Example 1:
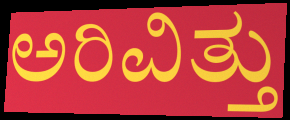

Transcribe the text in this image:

ಅರಿವಿತ್ತು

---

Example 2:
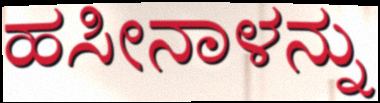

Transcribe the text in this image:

ಹಸೀನಾಳನ್ನು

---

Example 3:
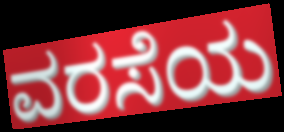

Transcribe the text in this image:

ವರಸೆಯ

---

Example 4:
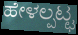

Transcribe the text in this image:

ಹೇಳಲ್ಪಟ್ಟ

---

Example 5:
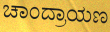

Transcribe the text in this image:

ಚಾಂದ್ರಾಯಣ